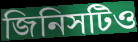
জিনিসটিও